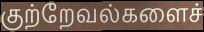
குற்றேவல்களைச்